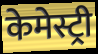
केमेस्ट्री